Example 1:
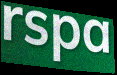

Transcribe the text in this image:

rspa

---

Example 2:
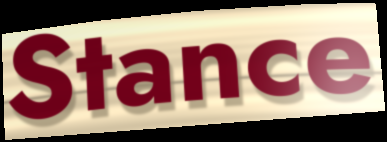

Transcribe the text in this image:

Stance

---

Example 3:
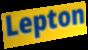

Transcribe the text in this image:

Lepton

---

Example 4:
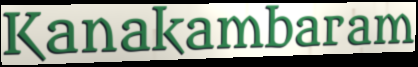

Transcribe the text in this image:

Kanakambaram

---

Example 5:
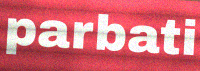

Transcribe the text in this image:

parbati